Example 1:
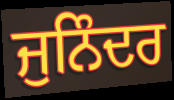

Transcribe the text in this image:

ਜੁਨਿੰਦਰ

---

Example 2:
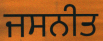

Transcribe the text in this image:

ਜਸਨੀਤ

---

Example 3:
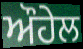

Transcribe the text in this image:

ਔਹੇਲ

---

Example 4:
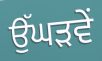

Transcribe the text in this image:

ਉੱਘੜਵੇਂ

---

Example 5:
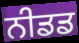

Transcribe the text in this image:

ਨੀਡਡ